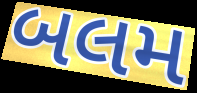
બલમ